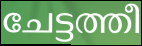
ചേട്ടത്തീ